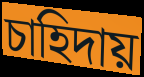
চাহিদায়